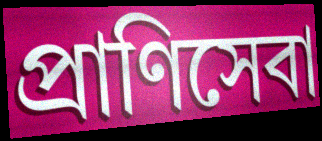
প্রাণিসেবা